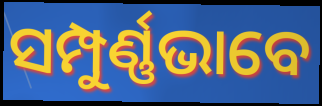
ସମ୍ପୁର୍ଣ୍ଣଭାବେ